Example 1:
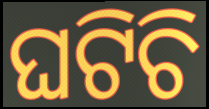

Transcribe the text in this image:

ଘଟିଚି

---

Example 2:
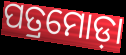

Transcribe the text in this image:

ପତ୍ରମୋଡ଼ା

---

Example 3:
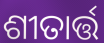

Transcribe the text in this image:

ଶୀତାର୍ତ୍ତ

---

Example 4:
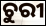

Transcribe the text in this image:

ଚୁରୀ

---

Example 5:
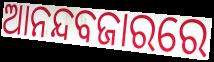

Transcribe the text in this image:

ଆନନ୍ଦବଜାରରେ